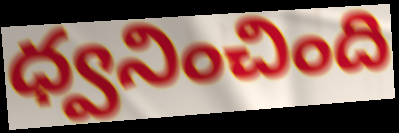
ధ్వనించింది